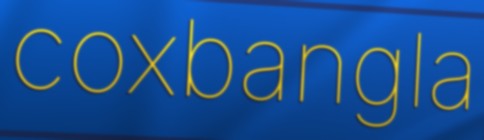
coxbangla